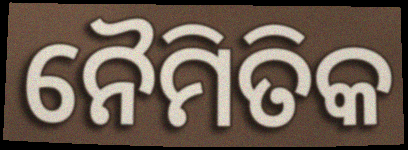
ନୈମିତିକ